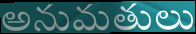
అనుమతులు